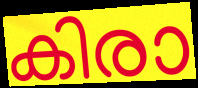
കിരാ